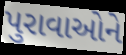
પુરાવાઓને